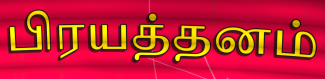
பிரயத்தனம்